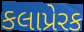
કલાપ્રેરક